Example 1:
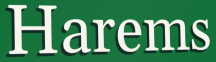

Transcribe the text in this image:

Harems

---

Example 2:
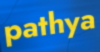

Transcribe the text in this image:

pathya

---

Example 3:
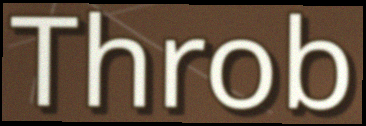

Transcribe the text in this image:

Throb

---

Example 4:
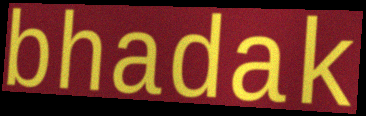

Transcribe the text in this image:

bhadak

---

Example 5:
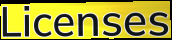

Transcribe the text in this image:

Licenses